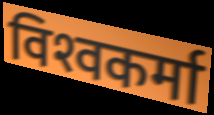
विश्वकर्मा